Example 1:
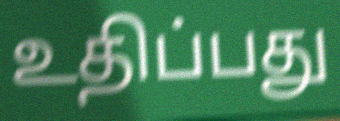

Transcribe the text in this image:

உதிப்பது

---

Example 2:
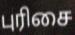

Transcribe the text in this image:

புரிசை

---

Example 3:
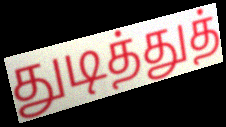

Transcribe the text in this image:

துடித்துத்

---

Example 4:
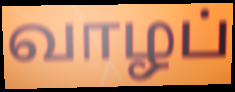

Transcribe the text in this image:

வாழப்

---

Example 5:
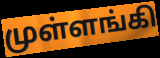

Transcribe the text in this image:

முள்ளங்கி